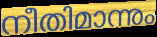
നീതിമാന്നും